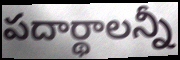
పదార్థాలన్నీ